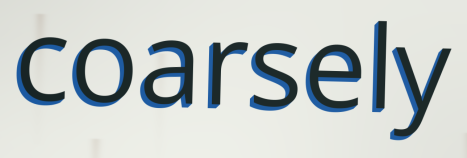
coarsely